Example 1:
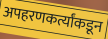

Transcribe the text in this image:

अपहरणकर्त्यांकडून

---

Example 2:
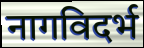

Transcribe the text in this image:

नागविदर्भ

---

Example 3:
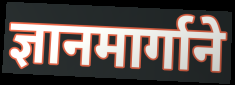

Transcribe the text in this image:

ज्ञानमार्गाने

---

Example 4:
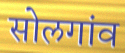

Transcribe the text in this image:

सोलगांव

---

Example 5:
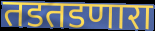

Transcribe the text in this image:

तडतडणारा